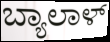
ಬ್ಯಾಲಾಳ್